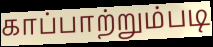
காப்பாற்றும்படி